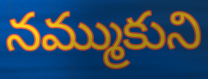
నమ్ముకుని